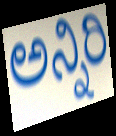
ಅನ್ನಿರಿ